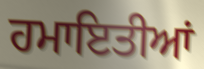
ਹਮਾਇਤੀਆਂ